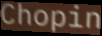
Chopin